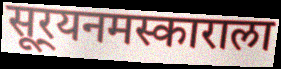
सूर्यनमस्काराला